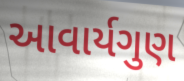
આવાર્યગુણ